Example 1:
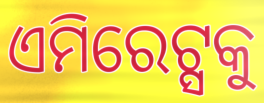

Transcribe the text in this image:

ଏମିରେଟ୍ସକୁ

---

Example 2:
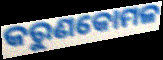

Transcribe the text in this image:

କରୁଣକୋମଳ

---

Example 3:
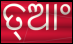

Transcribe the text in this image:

ତ୍ଆଂ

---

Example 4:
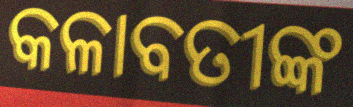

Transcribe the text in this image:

କଳାବତୀଙ୍କ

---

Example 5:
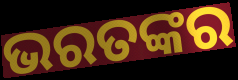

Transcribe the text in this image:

ଭରତଙ୍କର